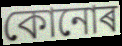
কোনোৰ